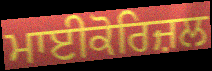
ਮਾਈਕੋਰਿਜ਼ਲ